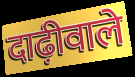
दाढ़ीवाले